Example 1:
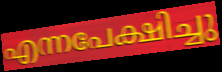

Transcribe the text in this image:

എന്നപേക്ഷിച്ചു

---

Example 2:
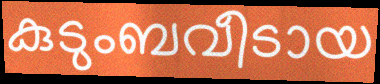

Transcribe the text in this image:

കുടുംബവീടായ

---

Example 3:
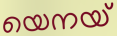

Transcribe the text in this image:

യെനയ്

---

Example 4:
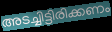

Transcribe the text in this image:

അടച്ചിട്ടിരിക്കണം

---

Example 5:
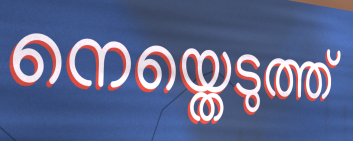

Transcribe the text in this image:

നെയ്തെടുത്ത്